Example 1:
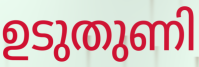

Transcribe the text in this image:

ഉടുതുണി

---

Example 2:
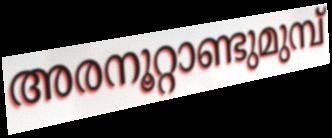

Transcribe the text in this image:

അരനൂറ്റാണ്ടുമുമ്പ്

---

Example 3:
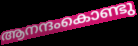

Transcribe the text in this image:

ആനന്ദംകൊണ്ടു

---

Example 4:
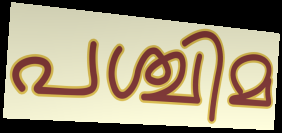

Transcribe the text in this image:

പശ്ചിമ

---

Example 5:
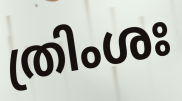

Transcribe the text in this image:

ത്രിംശഃ